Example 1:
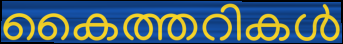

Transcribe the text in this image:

കൈത്തറികൾ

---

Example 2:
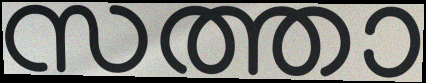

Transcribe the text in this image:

സത്താ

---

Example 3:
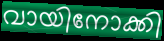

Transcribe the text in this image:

വായിനോക്കി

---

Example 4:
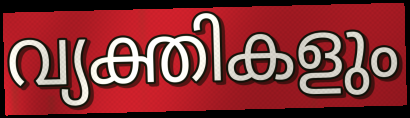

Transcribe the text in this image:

വ്യക്തികളും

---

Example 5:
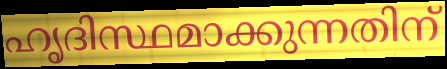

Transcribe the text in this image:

ഹൃദിസ്ഥമാക്കുന്നതിന്